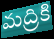
మద్రికి